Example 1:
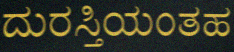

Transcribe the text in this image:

ದುರಸ್ತಿಯಂತಹ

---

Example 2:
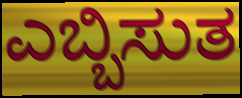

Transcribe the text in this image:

ಎಬ್ಬಿಸುತ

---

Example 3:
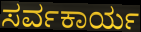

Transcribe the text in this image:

ಸರ್ವಕಾರ್ಯ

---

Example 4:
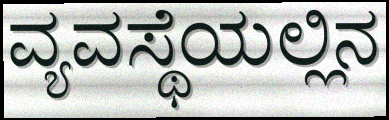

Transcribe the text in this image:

ವ್ಯವಸ್ಥೆಯಲ್ಲಿನ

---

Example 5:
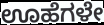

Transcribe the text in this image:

ಊಹೆಗಳೇ